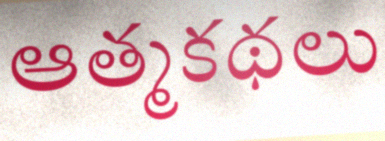
ఆత్మకథలు